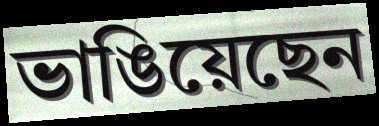
ভাঙিয়েছেন